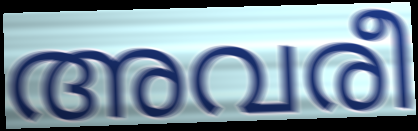
അവരീ